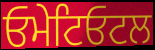
ਓਮੇਟਿਓਟਲ